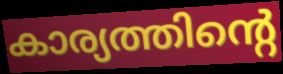
കാര്യത്തിന്റെ